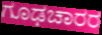
ಗೂಢಚಾರರ